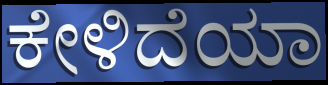
ಕೇಳಿದೆಯಾ